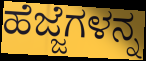
ಹೆಜ್ಜೆಗಳನ್ನ